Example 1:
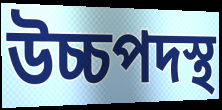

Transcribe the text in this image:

উচ্চপদস্থ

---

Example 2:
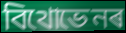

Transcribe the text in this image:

বিথোভেনৰ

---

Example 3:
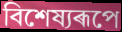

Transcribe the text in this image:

বিশেষ্যৰূপে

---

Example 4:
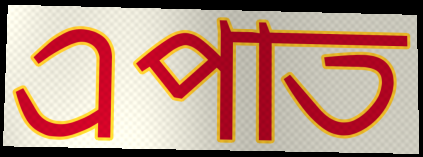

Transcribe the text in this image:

এপাত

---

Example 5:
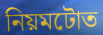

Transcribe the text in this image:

নিয়মটোত